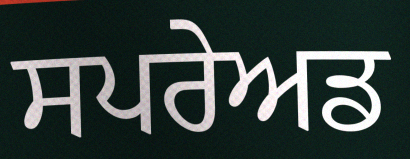
ਸਪਰੇਅਡ